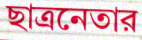
ছাত্রনেতার